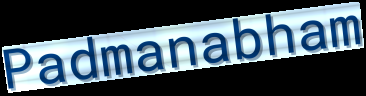
Padmanabham